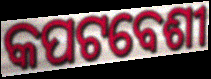
କପଟବେଶୀ